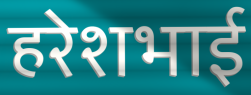
हरेशभाई